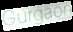
Gurgaon